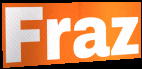
Fraz